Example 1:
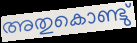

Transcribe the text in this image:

അതുകൊണ്ടു്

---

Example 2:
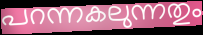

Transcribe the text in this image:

പറന്നകലുന്നതും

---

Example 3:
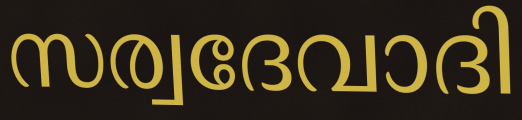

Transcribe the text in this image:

സര്വദേവാദി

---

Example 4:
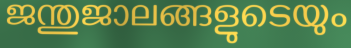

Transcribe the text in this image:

ജന്തുജാലങ്ങളുടെയും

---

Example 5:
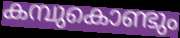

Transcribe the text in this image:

കമ്പുകൊണ്ടും